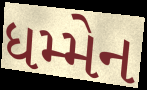
ધમ્મેન